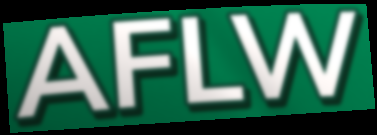
AFLW